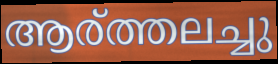
ആര്ത്തലച്ചു